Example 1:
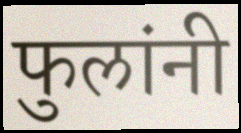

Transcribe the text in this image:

फुलांनी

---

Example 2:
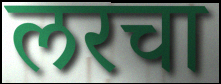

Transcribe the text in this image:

लरचा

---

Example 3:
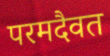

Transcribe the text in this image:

परमदैवत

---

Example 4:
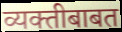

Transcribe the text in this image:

व्यक्तीबाबत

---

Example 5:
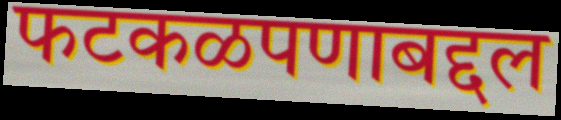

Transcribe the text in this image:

फटकळपणाबद्दल